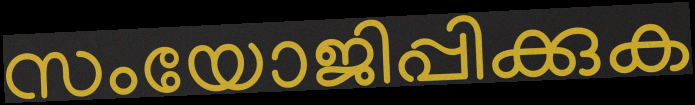
സംയോജിപ്പിക്കുക